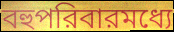
বহুপরিবারমধ্যে